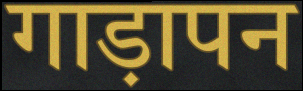
गाड़ापन